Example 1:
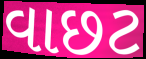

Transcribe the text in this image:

વાછટ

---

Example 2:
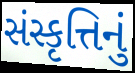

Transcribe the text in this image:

સંસ્કૃત્તિનું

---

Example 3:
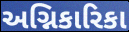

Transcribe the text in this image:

અગ્નિકારિકા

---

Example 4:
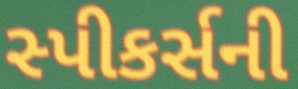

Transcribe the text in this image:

સ્પીકર્સની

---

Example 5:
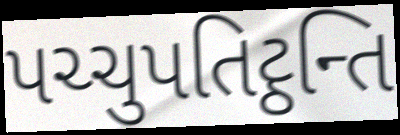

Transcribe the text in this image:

પચ્ચુપતિટ્ઠન્તિ